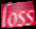
loss